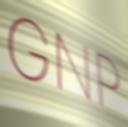
GNP